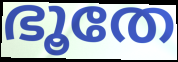
ഭൂതേ